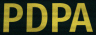
PDPA